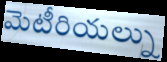
మెటీరియల్ను